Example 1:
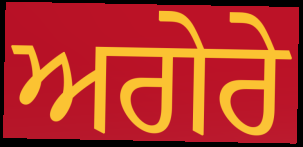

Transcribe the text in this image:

ਅਗੇਰੇ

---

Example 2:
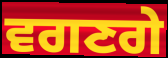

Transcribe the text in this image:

ਵਗਣਗੇ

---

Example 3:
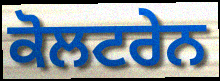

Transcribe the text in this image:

ਕੋਲਟਰੇਨ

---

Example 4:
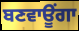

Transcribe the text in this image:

ਬਣਵਾਊਂਗਾ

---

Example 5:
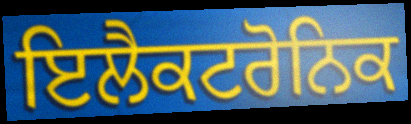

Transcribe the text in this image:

ਇਲੈਕਟਰੋਨਿਕ